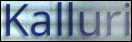
Kalluri